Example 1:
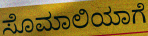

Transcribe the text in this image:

ಸೊಮಾಲಿಯಾಗೆ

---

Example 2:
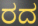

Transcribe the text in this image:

ರದ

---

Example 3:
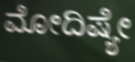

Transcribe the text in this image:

ಮೋದಿಷ್ಯೇ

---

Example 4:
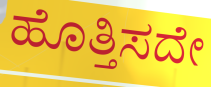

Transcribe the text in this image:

ಹೊತ್ತಿಸದೇ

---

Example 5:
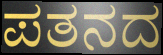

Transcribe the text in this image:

ಪತನದ